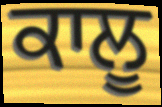
ਕਾਲੂ